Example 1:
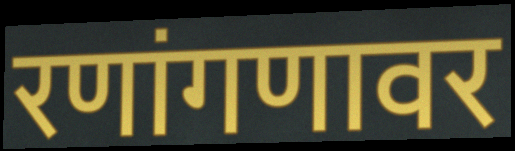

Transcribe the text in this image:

रणांगणावर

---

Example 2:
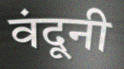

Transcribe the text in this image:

वंदूनी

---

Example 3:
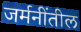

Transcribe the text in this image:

जर्मनींतील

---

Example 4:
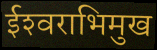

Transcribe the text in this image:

ईश्वराभिमुख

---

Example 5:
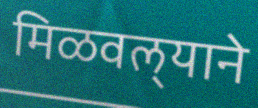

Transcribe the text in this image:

मिळवल्याने